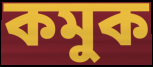
কমুক